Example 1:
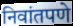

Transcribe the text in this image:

निवांतपणे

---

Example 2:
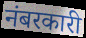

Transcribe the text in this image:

नंबरकारी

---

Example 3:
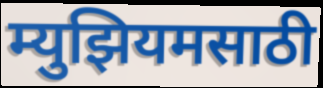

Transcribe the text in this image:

म्युझियमसाठी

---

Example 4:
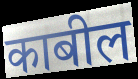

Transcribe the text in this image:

काबील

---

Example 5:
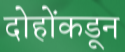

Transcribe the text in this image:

दोहोंकडून